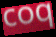
coq